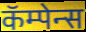
कॅम्पेन्स